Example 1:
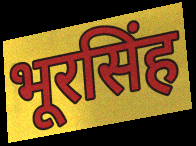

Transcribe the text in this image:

भूरसिंह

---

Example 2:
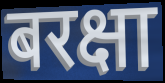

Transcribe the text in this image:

बरक्षा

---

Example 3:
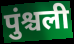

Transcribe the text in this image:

पुंश्चली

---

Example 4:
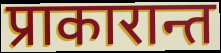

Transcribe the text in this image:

प्राकारान्त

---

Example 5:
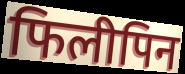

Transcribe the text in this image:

फिलीपिन